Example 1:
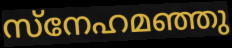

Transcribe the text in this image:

സ്നേഹമഞ്ഞു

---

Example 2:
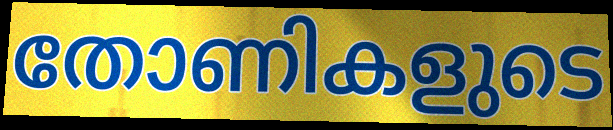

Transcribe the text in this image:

തോണികളുടെ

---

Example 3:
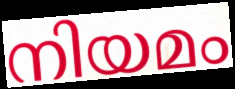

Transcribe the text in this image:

നിയമം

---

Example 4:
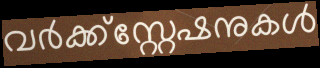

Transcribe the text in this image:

വർക്ക്സ്റ്റേഷനുകൾ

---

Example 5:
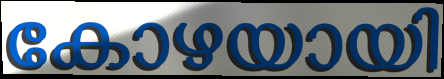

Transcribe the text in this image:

കോഴയായി